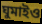
ঘুমাইও